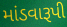
માંડવારૂપી